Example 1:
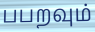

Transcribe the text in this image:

பபறவும்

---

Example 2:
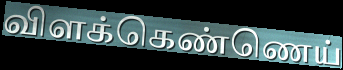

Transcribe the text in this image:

விளக்கெண்ணெய்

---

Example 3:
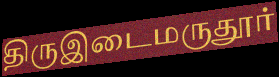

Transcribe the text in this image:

திருஇடைமருதூர்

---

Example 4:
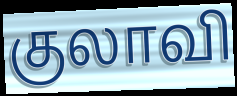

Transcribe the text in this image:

குலாவி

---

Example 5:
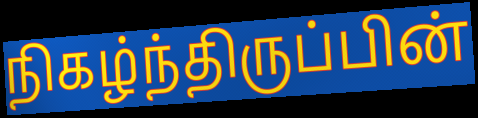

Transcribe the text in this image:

நிகழ்ந்திருப்பின்